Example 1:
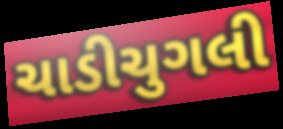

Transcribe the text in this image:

ચાડીચુગલી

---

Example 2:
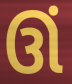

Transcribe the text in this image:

ઊં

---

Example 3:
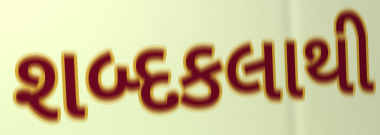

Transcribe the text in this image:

શબ્દકલાથી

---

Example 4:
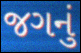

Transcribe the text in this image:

જગનું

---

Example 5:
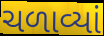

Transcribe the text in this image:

ચળાવ્યાં